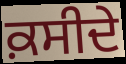
ਕ਼ਸੀਦੇ